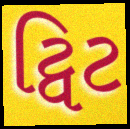
ટ્વિટ